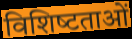
विशिष्‍टताओं